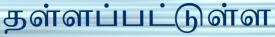
தள்ளப்பட்டுள்ள